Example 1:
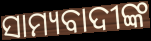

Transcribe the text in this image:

ସାମ୍ୟବାଦୀଙ୍କ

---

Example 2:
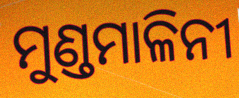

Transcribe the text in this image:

ମୁଣ୍ଡମାଳିନୀ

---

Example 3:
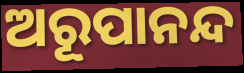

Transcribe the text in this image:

ଅରୂପାନନ୍ଦ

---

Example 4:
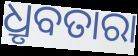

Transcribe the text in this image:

ଧ୍ରୃବତାରା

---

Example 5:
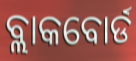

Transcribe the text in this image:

ବ୍ଲାକବୋର୍ଡ